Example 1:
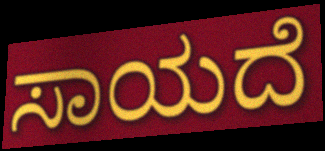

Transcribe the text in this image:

ಸಾಯದೆ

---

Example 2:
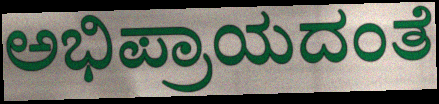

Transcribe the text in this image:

ಅಭಿಪ್ರಾಯದಂತೆ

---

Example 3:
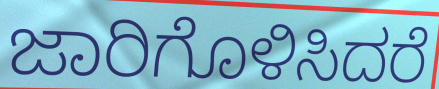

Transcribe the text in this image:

ಜಾರಿಗೊಳಿಸಿದರೆ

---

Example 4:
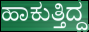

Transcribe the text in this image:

ಹಾಕುತ್ತಿದ್ದ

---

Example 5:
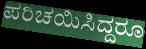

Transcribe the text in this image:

ಪರಿಚಯಿಸಿದ್ದರೂ